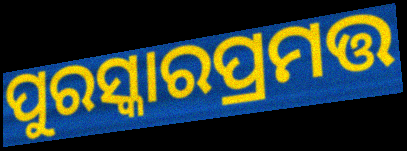
ପୁରସ୍କାରପ୍ରମତ୍ତ